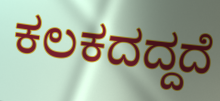
ಕಲಕದದ್ದದೆ